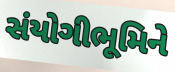
સંયોગીભૂમિને